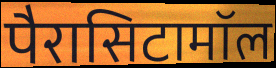
पैरासिटामॉल